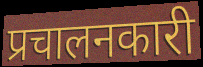
प्रचालनकारी